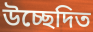
উচ্ছেদিত